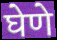
घेणे